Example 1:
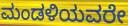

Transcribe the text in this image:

ಮಂಡಳಿಯವರೇ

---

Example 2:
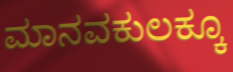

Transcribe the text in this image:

ಮಾನವಕುಲಕ್ಕೂ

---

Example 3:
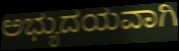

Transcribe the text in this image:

ಅಭ್ಯುದಯವಾಗಿ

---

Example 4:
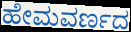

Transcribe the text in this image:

ಹೇಮವರ್ಣದ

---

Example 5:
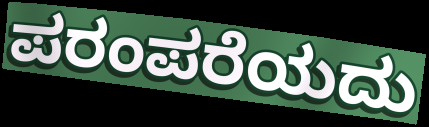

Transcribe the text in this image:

ಪರಂಪರೆಯದು